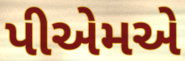
પીએમએ